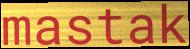
mastak